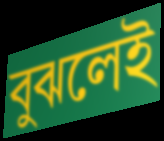
বুঝলেই